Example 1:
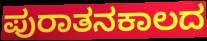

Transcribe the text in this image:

ಪುರಾತನಕಾಲದ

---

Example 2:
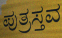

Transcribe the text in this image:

ಪುತ್ರಸ್ತವ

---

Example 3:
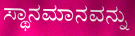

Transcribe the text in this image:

ಸ್ಥಾನಮಾನವನ್ನು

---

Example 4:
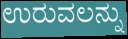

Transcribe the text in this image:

ಉರುವಲನ್ನು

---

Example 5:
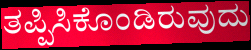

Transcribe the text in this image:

ತಪ್ಪಿಸಿಕೊಂಡಿರುವುದು